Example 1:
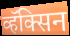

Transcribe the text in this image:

व्हॅक्सिन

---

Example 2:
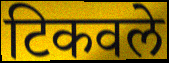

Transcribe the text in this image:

टिकवले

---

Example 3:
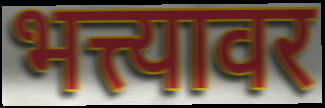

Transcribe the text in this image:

भत्त्यावर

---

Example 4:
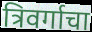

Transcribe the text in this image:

त्रिवर्गाचा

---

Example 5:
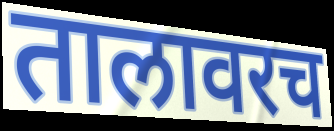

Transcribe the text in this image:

तालावरच